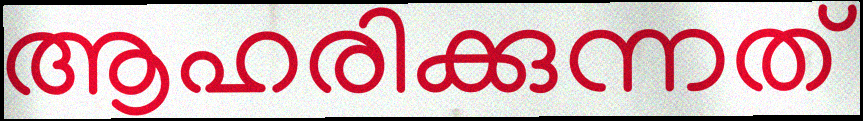
ആഹരിക്കുന്നത്